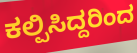
ಕಲ್ಪಿಸಿದ್ದರಿಂದ